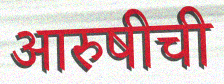
आरुषीची